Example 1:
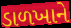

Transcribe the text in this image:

ડાળખાને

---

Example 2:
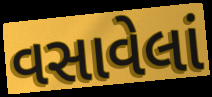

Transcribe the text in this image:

વસાવેલાં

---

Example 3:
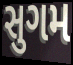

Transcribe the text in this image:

સુગમ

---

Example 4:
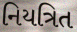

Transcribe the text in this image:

નિયત્રિત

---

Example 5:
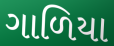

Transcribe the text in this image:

ગાળિયા